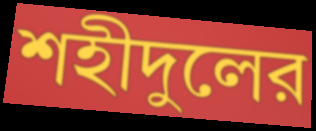
শহীদুলের